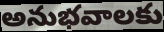
అనుభవాలకు